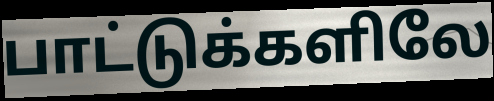
பாட்டுக்களிலே